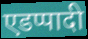
एडप्पादी